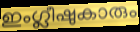
ഇംഗ്ലീഷുകാരും